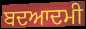
ਬਦਆਦਮੀ